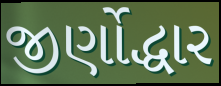
જીર્ણોદ્ધાર